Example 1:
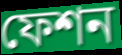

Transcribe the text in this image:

ফেশন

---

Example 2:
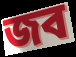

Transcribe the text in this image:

জব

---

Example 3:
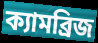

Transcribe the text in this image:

ক্যামব্রিজ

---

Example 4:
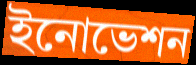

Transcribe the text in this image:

ইনোভেশন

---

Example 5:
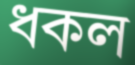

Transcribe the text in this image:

ধকল